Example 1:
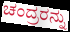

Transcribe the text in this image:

ಚಂದ್ರರನ್ನು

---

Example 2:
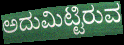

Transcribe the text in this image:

ಅದುಮಿಟ್ಟಿರುವ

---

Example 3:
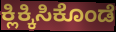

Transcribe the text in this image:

ಕ್ಲಿಕ್ಕಿಸಿಕೊಂಡೆ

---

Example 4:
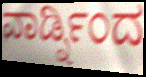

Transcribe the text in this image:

ವಾರ್ಡ್ನಿಂದ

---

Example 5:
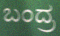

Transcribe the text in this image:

ಬಂದ್ರ